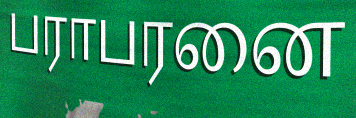
பராபரனை